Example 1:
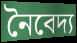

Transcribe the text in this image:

নৈবেদ্য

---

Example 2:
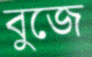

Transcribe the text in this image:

বুজে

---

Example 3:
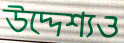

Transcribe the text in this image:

উদ্দেশ্যও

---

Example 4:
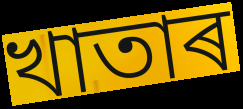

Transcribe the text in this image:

খাতাৰ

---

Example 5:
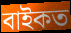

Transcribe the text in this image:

বাইকত